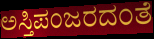
ಅಸ್ತಿಪಂಜರದಂತೆ